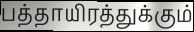
பத்தாயிரத்துக்கும்